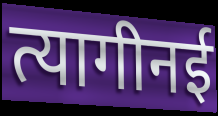
त्यागीनई